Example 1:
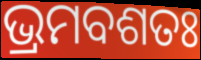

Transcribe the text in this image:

ଭ୍ରମବଶତଃ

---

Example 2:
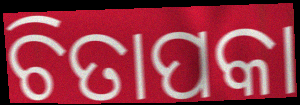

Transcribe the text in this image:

ଚିତାପକା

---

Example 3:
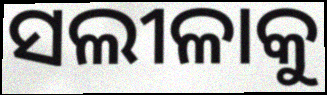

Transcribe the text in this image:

ସଲୀଳାକୁ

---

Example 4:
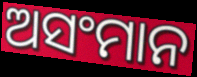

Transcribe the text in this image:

ଅସଂମାନ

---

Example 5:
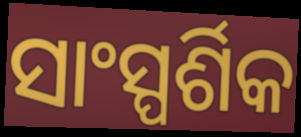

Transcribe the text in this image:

ସାଂସ୍ପର୍ଶିକ